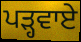
ਪੜ੍ਹਵਾਏ